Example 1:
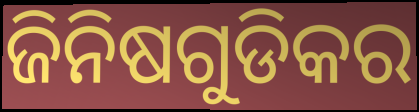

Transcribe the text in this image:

ଜିନିଷଗୁଡିକର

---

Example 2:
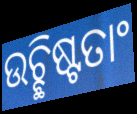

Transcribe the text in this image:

ଉଚ୍ଛିଷ୍ଟତାଂ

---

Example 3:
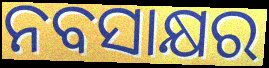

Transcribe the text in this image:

ନବସାକ୍ଷର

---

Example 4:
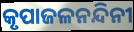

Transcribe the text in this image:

କୃପାଜଳନନ୍ଦିନୀ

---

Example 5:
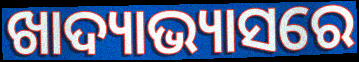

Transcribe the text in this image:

ଖାଦ୍ୟାଭ୍ୟାସରେ